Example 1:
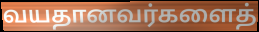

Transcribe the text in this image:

வயதானவர்களைத்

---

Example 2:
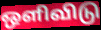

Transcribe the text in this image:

ஒளிவிடு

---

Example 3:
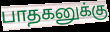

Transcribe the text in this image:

பாதகனுக்கு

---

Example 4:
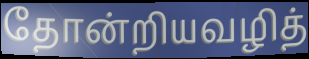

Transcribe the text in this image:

தோன்றியவழித்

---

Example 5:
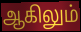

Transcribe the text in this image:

ஆகிலும்